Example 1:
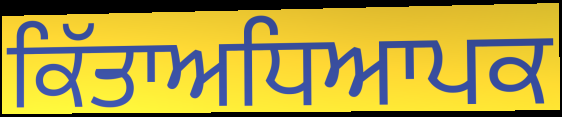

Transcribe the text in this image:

ਕਿੱਤਾਅਧਿਆਪਕ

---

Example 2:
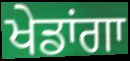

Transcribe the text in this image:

ਖੇਡਾਂਗਾ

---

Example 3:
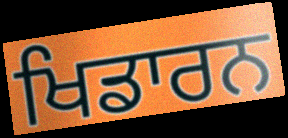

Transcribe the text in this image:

ਖਿਡਾਰਨ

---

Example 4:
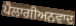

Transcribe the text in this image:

ਪੈਲਾਗੀਅਨਵਾਦ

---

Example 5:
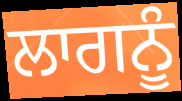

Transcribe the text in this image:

ਲਾਗਨੂੰ